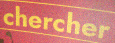
chercher